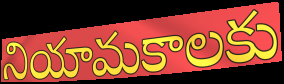
నియామకాలకు